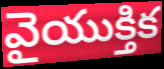
వైయుక్తిక